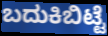
ಬದುಕಿಬಿಟ್ಟೆ